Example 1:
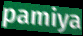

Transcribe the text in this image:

pamiya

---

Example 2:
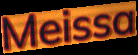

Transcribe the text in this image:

Meissa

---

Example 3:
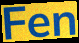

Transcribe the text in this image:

Fen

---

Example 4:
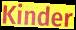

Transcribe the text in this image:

Kinder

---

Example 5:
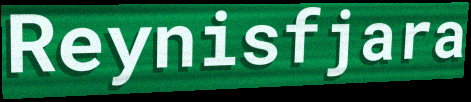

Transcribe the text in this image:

Reynisfjara